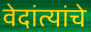
वेदांत्यांचे